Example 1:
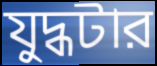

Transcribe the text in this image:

যুদ্ধটার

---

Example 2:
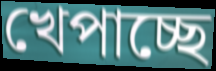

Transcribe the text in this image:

খেপাচ্ছে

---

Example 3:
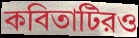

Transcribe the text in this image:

কবিতাটিরও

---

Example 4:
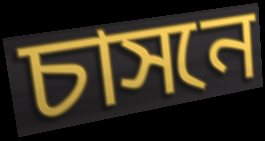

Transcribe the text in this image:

চাসনে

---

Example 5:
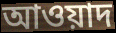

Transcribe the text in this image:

আওয়াদ